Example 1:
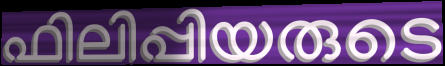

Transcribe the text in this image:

ഫിലിപ്പിയരുടെ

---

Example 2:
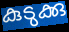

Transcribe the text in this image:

കുടുക്കു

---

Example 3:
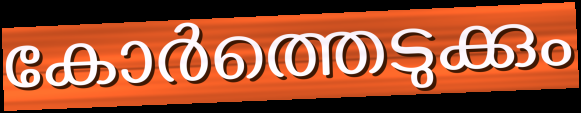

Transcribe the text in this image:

കോർത്തെടുക്കും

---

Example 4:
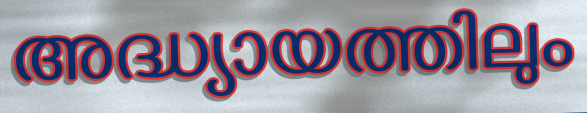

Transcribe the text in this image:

അദ്ധ്യായത്തിലും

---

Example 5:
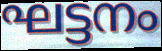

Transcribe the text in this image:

ഘട്ടനം